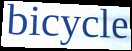
bicycle